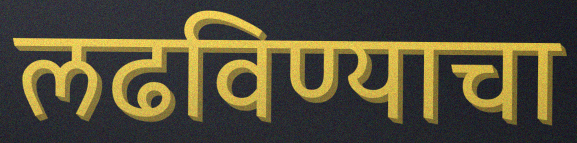
लढविण्याचा